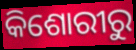
କିଶୋରୀରୁ